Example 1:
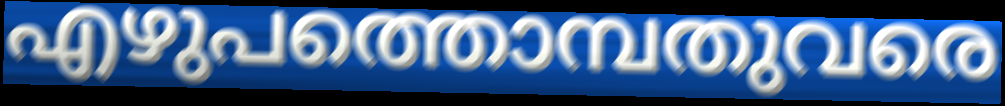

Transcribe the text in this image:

എഴുപത്തൊമ്പതുവരെ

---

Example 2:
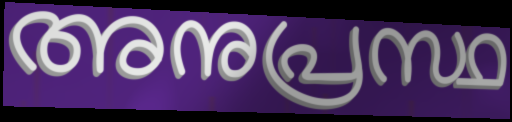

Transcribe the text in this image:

അനുപ്രസ്ഥ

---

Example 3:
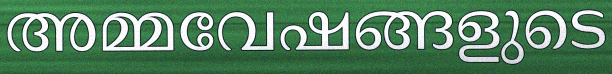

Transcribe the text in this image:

അമ്മവേഷങ്ങളുടെ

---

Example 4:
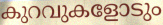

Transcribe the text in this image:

കുറവുകളോടും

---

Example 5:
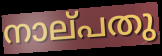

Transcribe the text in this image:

നാല്‌പതു